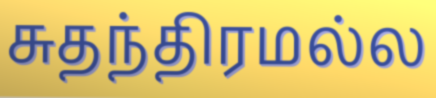
சுதந்திரமல்ல